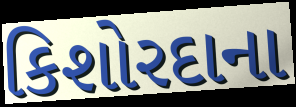
કિશોરદાના